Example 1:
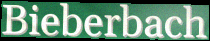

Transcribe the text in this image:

Bieberbach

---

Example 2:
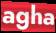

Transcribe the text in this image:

agha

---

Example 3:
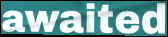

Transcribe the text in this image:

awaited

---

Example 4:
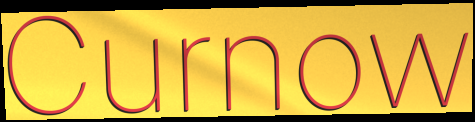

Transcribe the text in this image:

Curnow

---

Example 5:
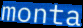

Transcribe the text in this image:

monta